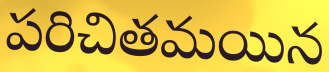
పరిచితమయిన